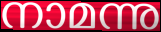
നാമന്നു